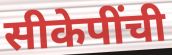
सीकेपींची